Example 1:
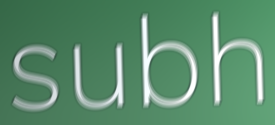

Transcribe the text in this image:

subh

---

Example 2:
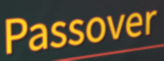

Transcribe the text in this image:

Passover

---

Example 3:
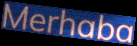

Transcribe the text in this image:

Merhaba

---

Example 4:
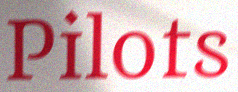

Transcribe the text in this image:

Pilots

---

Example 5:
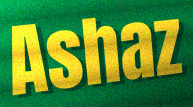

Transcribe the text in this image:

Ashaz